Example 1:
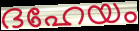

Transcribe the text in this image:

ദഹേയം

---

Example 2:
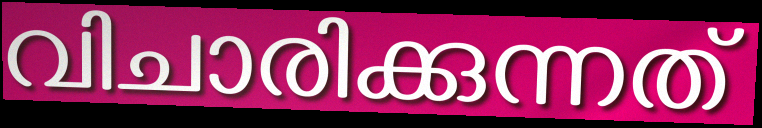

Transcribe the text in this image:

വിചാരിക്കുന്നത്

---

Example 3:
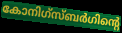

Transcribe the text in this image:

കോനിഗ്സ്ബർഗിന്റെ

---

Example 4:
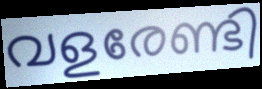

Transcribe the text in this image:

വളരേണ്ടി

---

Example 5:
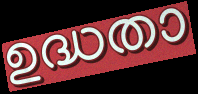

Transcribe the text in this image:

ഉദ്ധതാ